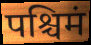
पश्चिमं